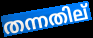
തന്നതില്